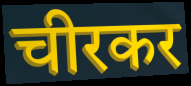
चीरकर